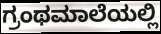
ಗ್ರಂಥಮಾಲೆಯಲ್ಲಿ